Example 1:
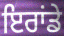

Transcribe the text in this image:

ਇਰਾਂਡੇ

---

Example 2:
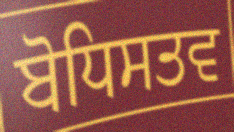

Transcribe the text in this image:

ਬੋਧਿਸਤਵ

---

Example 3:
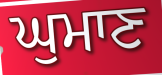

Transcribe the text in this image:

ਘੁਮਾਣ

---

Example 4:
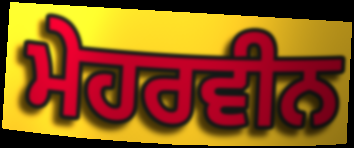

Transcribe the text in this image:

ਮੇਹਰਵੀਨ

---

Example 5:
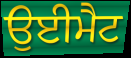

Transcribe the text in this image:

ਉਈਮੈਟ